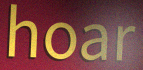
hoar